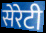
सेरेटी